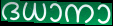
ദധാനാ